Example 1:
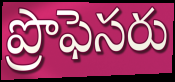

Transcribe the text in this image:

ప్రొఫెసరు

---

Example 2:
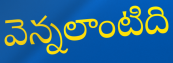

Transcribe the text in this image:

వెన్నలాంటిది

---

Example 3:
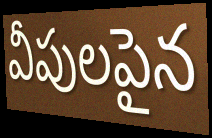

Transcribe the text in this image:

వీపులపైన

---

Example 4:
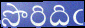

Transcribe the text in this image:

సొరిదిఁ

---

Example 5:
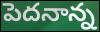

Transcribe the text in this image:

పెదనాన్న